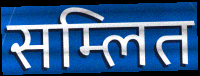
सम्लित